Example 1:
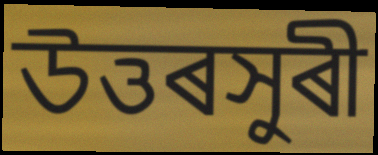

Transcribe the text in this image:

উত্তৰসুৰী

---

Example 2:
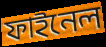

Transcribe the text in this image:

ফাইনেল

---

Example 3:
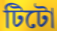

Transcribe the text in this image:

টিটো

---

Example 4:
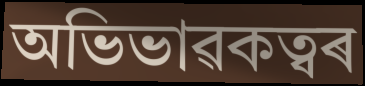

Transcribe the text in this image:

অভিভাৱকত্বৰ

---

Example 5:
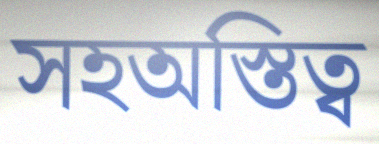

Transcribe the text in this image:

সহঅস্তিত্ব